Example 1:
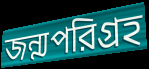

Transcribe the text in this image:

জন্মপরিগ্রহ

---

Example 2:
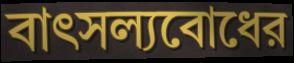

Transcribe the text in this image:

বাৎসল্যবোধের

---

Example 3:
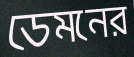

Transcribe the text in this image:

ডেমনের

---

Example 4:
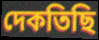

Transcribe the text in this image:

দেকতিছি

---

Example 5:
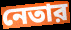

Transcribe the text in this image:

নেতার